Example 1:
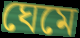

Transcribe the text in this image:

ঘেমে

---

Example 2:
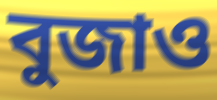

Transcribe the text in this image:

বুজাও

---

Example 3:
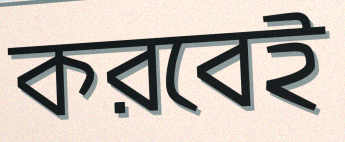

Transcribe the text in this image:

করবেই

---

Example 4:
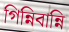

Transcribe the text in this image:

গিন্নিবান্নি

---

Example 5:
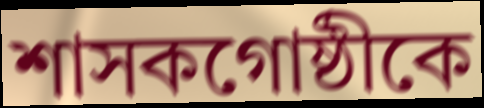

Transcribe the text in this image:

শাসকগোষ্ঠীকে